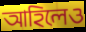
আহিলেও